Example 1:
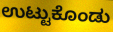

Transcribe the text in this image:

ಉಟ್ಟುಕೊಂಡು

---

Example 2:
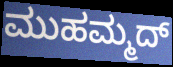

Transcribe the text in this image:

ಮುಹಮ್ಮದ್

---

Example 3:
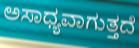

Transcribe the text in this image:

ಅಸಾಧ್ಯವಾಗುತ್ತದೆ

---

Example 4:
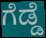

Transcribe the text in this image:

ಗೆಡ್ಡೆ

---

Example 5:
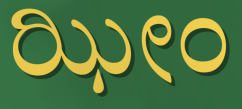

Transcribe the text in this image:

ಝೀಂ